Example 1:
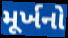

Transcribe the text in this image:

મૂર્ખનો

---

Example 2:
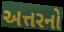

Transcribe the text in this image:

અત્તરનો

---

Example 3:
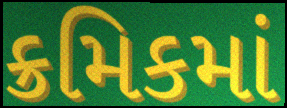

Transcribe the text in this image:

ક્રમિકમાં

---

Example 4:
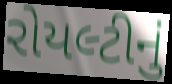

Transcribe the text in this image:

રોયલ્ટીનું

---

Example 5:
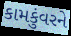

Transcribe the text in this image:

કામકુંવરને